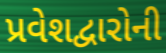
પ્રવેશદ્વારોની